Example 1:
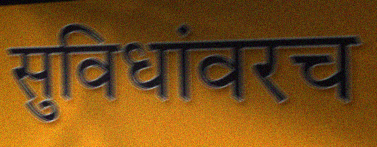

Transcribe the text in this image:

सुविधांवरच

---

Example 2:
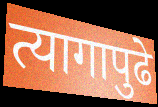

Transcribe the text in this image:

त्यागापुढे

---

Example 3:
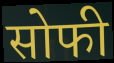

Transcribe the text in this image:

सोफी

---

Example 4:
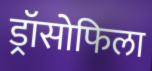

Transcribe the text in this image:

ड्रॉसोफिला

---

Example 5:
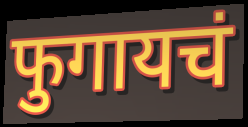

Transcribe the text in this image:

फुगायचं